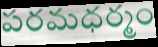
పరమధర్మం